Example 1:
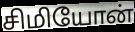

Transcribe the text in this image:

சிமியோன்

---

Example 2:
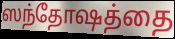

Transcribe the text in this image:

ஸந்தோஷத்தை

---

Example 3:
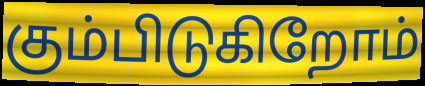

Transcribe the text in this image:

கும்பிடுகிறோம்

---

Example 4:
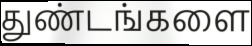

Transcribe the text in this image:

துண்டங்களை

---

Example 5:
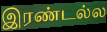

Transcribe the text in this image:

இரண்டல்ல